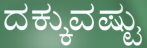
ದಕ್ಕುವಷ್ಟು